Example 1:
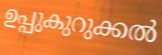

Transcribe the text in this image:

ഉപ്പുകുറുക്കൽ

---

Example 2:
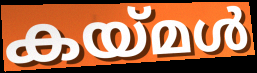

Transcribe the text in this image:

കയ്മൾ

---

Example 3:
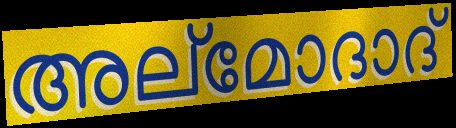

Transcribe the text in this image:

അല്മോദാദ്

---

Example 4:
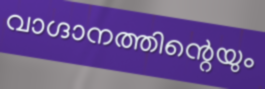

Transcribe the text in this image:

വാഗ്ദാനത്തിന്റെയും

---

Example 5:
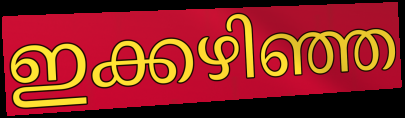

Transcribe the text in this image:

ഇക്കഴിഞ്ഞ